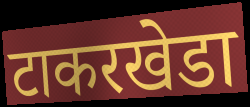
टाकरखेडा